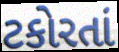
ટકોરતાં